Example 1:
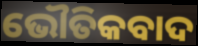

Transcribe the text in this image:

ଭୌତିକବାଦ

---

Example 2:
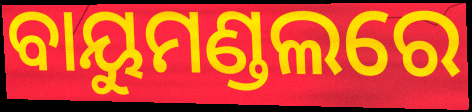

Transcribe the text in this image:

ବାୟୁମଣ୍ଡଲରେ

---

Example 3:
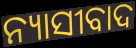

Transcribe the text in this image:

ନ୍ୟାସୀବାଦ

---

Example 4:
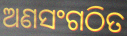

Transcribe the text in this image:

ଅଣସଂଗଠିତ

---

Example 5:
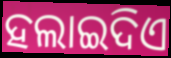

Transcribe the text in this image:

ହଲାଇଦିଏ